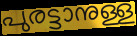
പുരട്ടാനുള്ള